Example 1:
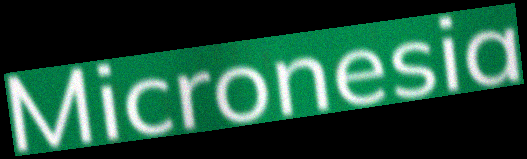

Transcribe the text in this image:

Micronesia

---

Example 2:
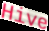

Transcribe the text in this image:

Hive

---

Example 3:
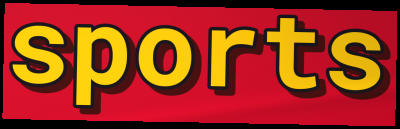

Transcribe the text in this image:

sports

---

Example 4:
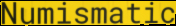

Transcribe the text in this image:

Numismatic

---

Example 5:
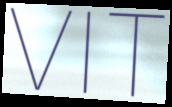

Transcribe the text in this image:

VIT